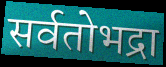
सर्वतोभद्रा